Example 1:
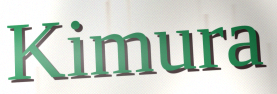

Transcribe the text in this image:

Kimura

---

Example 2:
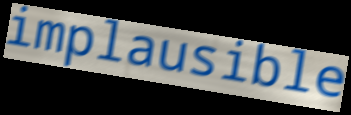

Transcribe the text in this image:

implausible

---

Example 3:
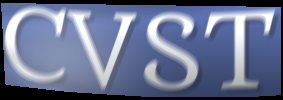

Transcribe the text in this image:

CVST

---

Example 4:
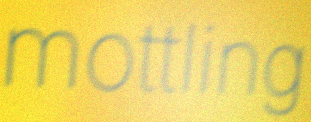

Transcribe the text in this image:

mottling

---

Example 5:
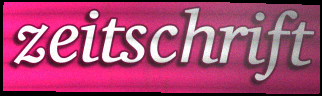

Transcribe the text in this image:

zeitschrift